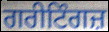
ਗਰੀਟਿੰਗਜ਼